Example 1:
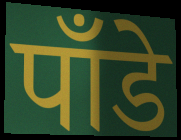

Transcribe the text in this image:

पाँडे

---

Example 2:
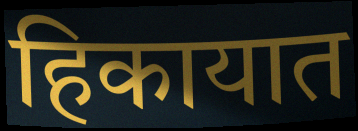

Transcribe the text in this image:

हिकायात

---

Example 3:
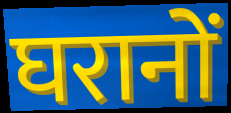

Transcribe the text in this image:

घरानों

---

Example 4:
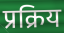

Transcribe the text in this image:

प्रक्रिय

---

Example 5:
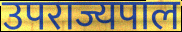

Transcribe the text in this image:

उपराज्यपाल